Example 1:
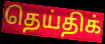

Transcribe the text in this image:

தெய்திக்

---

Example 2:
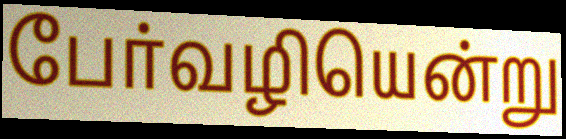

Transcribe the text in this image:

பேர்வழியென்று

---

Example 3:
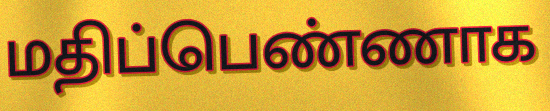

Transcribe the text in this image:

மதிப்பெண்ணாக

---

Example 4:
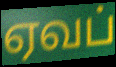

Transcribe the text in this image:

ஏவப்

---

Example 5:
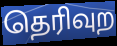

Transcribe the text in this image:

தெரிவுற